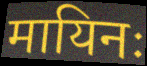
मायिनः